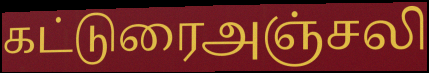
கட்டுரைஅஞ்சலி